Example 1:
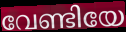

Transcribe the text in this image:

വേണ്ടിയേ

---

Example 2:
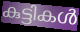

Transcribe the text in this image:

കുട്ടികൾ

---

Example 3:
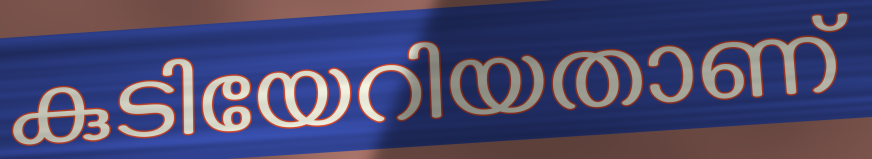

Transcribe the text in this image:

കുടിയേറിയതാണ്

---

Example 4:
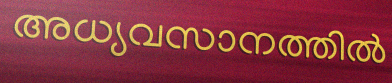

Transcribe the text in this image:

അധ്യവസാനത്തിൽ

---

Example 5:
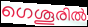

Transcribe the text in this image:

ഗെശൂരിൽ